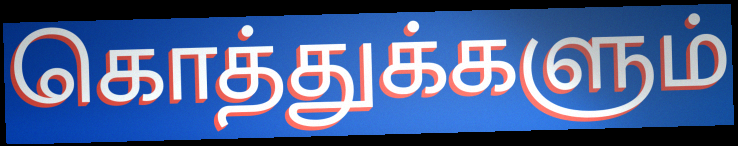
கொத்துக்களும்